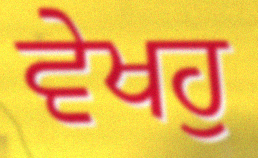
ਵੇਖਹੁ